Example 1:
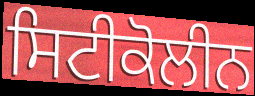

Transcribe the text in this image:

ਸਿਟੀਕੋਲੀਨ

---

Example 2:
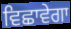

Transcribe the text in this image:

ਵਿਛਾਵੇਗਾ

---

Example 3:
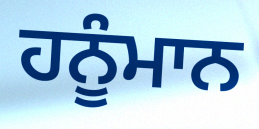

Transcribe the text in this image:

ਹਨੂੰਮਾਨ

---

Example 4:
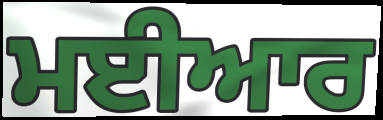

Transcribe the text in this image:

ਮਈਆਰ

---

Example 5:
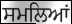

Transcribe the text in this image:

ਸਮਲਿਆਂ